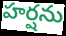
హర్షను